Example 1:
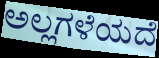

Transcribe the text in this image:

ಅಲ್ಲಗಳೆಯದೆ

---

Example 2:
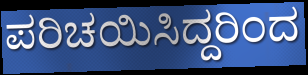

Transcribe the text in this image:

ಪರಿಚಯಿಸಿದ್ದರಿಂದ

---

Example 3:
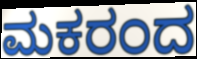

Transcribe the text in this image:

ಮಕರಂದ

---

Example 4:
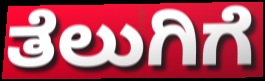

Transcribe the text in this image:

ತೆಲುಗಿಗೆ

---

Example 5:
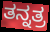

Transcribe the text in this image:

ತನ್ನತ್ರ